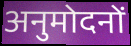
अनुमोदनों